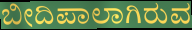
ಬೀದಿಪಾಲಾಗಿರುವ